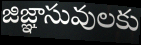
జిజ్ఞాసువులకు